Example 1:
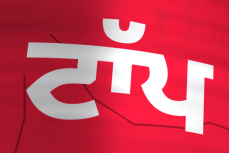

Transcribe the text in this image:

ਟਾੱਪ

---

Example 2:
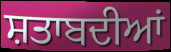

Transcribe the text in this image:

ਸ਼ਤਾਬਦੀਆਂ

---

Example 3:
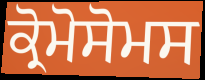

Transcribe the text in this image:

ਕ੍ਰੋਮੋਸੋਮਸ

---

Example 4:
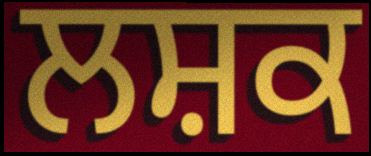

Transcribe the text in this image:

ਲਸ਼ਕ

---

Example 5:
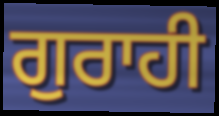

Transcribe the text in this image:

ਗੁਰਾਹੀ